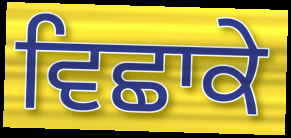
ਵਿਛਾਕੇ